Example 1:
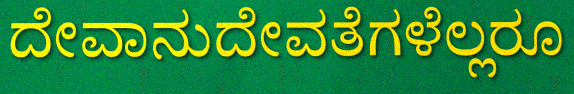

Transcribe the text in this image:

ದೇವಾನುದೇವತೆಗಳೆಲ್ಲರೂ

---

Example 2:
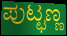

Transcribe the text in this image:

ಪುಟ್ಟಣ್ಣ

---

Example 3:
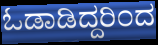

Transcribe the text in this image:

ಓಡಾಡಿದ್ದರಿಂದ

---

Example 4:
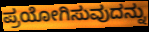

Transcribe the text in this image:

ಪ್ರಯೋಗಿಸುವುದನ್ನು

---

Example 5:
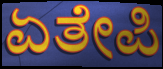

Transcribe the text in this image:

ಏತೇಪಿ